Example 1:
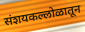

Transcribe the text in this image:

संशयकल्लोळातून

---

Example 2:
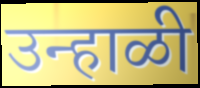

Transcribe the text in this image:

उन्हाळी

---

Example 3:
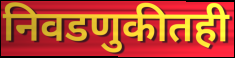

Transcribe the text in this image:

निवडणुकीतही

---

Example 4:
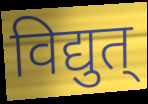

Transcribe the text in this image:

विद्युत्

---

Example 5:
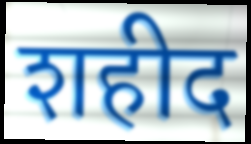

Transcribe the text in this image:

शहीद